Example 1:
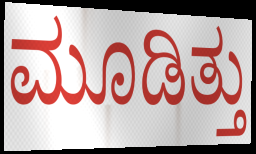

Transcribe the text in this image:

ಮೂಡಿತ್ತು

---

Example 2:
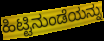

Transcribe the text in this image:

ಹಿಟ್ಟಿನುಂಡೆಯನ್ನು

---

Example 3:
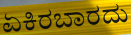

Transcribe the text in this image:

ಏಕಿರಬಾರದು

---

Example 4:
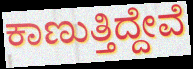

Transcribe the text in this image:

ಕಾಣುತ್ತಿದ್ದೇವೆ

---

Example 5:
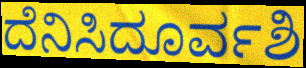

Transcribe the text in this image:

ದೆನಿಸಿದೂರ್ವಶಿ